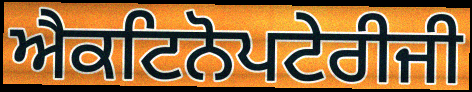
ਐਕਟਿਨੋਪਟੇਰੀਜੀ